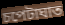
চপেটাঘাত